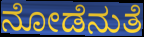
ನೋಡೆನುತೆ